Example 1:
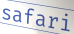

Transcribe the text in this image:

safari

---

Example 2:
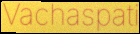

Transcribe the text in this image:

Vachaspati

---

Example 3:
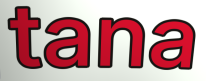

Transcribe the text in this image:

tana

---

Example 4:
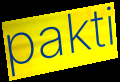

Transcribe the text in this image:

pakti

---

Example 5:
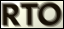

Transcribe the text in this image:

RTO